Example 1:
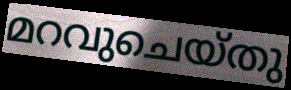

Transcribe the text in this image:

മറവുചെയ്തു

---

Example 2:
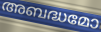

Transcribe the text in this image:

അബദ്ധമോ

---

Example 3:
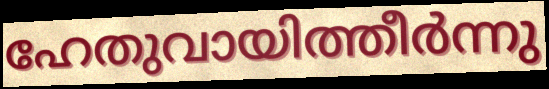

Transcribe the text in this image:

ഹേതുവായിത്തീർന്നു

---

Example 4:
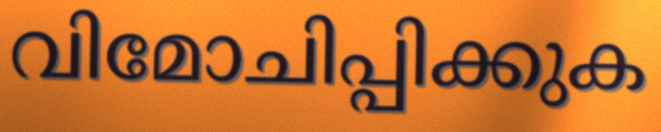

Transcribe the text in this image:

വിമോചിപ്പിക്കുക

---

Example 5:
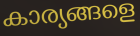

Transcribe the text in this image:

കാര്യങ്ങളെ